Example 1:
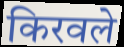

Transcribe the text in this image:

किरवले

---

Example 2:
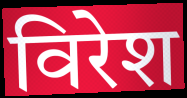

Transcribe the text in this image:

विरेश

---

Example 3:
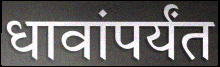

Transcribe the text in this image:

धावांपर्यंत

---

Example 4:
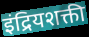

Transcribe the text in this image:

इंद्रियशक्ती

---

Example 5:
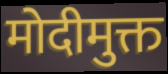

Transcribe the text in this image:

मोदीमुक्त